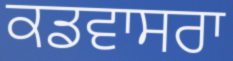
ਕਡਵਾਸਰਾ